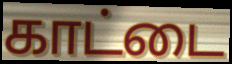
காட்டை